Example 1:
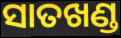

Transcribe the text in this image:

ସାତଖଣ୍ଡ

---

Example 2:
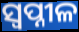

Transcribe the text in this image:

ସ୍ୱପ୍ନୀଳ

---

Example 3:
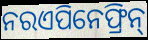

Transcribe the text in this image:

ନରଏପିନେଫ୍ରିନ୍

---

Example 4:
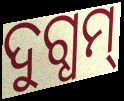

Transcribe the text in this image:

ଦୁଗ୍ଧମ୍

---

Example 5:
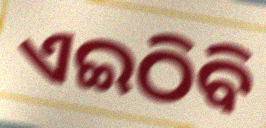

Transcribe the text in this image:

ଏଇଠିବି